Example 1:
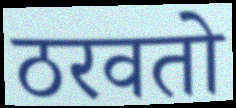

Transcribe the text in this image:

ठरवतो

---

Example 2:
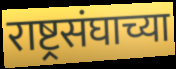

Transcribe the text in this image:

राष्ट्रसंघाच्या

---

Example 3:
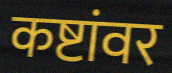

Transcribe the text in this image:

कष्टांवर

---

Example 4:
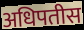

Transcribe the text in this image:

अधिपतीस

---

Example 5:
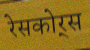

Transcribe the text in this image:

रेसकोर्स